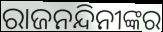
ରାଜନନ୍ଦିନୀଙ୍କର